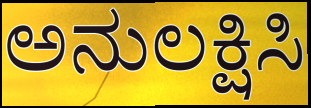
ಅನುಲಕ್ಷಿಸಿ